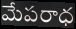
మేపరాధ